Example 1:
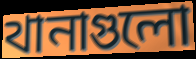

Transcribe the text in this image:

থানাগুলো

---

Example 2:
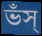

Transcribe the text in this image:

ভঁস্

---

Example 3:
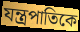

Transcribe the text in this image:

যন্ত্রপাতিকে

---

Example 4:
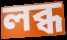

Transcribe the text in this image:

লব্ধ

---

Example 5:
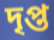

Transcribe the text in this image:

দৃপ্ত